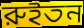
রুইতন